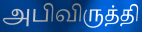
அபிவிருத்தி